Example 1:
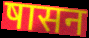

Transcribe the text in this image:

षासन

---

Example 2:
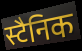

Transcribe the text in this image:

स्टैनिक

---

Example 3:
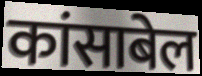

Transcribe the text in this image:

कांसाबेल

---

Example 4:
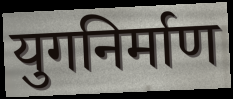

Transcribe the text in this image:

युगनिर्माण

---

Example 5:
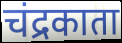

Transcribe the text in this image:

चंद्रकाता